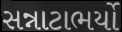
સન્નાટાભર્યો